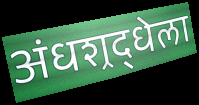
अंधश्रद्धेला